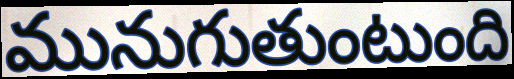
మునుగుతుంటుంది